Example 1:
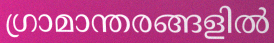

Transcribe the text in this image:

ഗ്രാമാന്തരങ്ങളിൽ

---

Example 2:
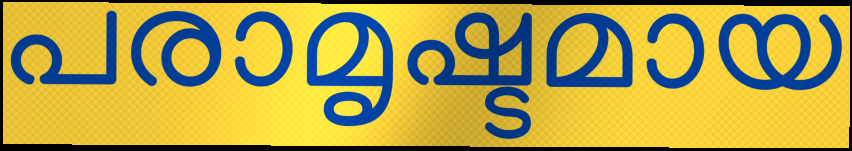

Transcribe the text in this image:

പരാമൃഷ്ടമായ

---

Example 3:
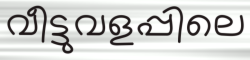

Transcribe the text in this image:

വീട്ടുവളപ്പിലെ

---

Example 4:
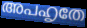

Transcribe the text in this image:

അപഹൃതേ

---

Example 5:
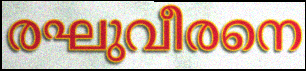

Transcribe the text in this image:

രഘുവീരനെ